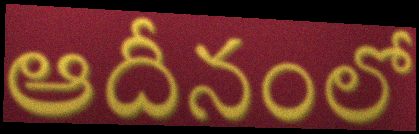
ఆదీనంలో